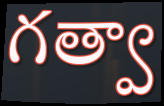
గత్వా